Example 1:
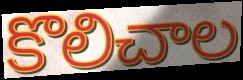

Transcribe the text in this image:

కొలిచాల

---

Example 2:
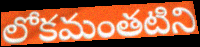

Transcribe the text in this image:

లోకమంతటిని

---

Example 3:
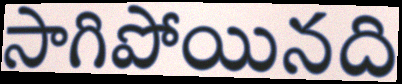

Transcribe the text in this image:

సాగిపోయినది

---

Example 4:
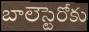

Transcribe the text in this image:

బాలెస్టెరోకు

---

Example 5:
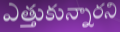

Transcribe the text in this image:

ఎత్తుకున్నారని